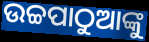
ଉଚ୍ଚପାଠୁଆଙ୍କୁ